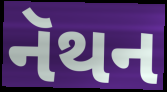
નૅથન